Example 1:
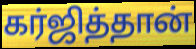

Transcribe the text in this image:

கர்ஜித்தான்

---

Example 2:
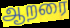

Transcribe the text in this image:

ஆறரை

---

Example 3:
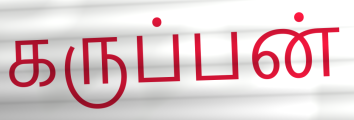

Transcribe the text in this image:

கருப்பன்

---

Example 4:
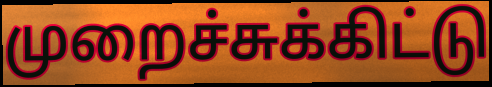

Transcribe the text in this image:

முறைச்சுக்கிட்டு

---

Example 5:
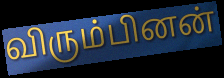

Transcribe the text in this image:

விரும்பினன்